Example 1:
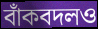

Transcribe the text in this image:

বাঁকবদলও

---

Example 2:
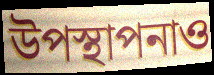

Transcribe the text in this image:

উপস্থাপনাও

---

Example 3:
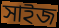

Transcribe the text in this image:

সাইজ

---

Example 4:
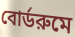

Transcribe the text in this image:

বোর্ডরুমে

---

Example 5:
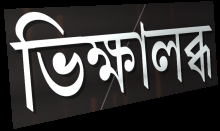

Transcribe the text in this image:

ভিক্ষালব্ধ